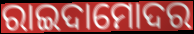
ରାଇଦାମୋଦର